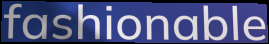
fashionable